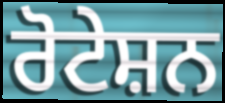
ਰੋਟੇਸ਼ਨ